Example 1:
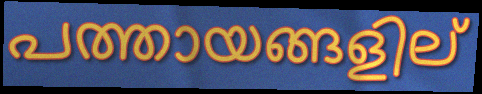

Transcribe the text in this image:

പത്തായങ്ങളില്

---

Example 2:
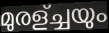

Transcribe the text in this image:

മുരള്ച്ചയും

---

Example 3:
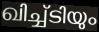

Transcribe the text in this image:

ഖിച്ച്ടിയും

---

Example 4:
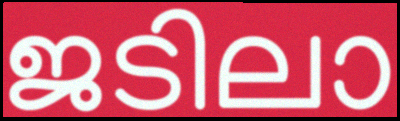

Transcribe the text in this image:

ജടിലാ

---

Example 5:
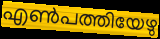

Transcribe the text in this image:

എൺപത്തിയേഴു